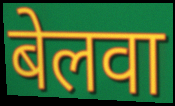
बेलवा